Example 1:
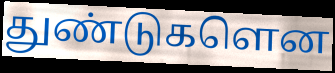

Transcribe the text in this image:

துண்டுகளென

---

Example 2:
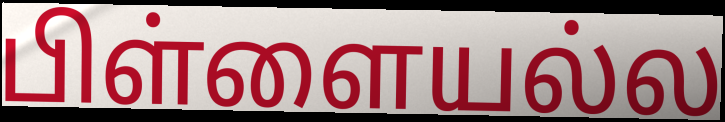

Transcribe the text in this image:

பிள்ளையல்ல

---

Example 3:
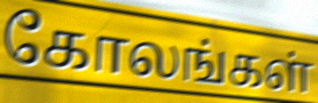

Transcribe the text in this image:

கோலங்கள்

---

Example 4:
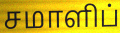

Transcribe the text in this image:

சமாளிப்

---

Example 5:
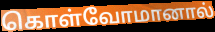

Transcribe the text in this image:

கொள்வோமானால்